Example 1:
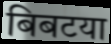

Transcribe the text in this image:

बिबटया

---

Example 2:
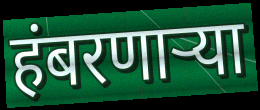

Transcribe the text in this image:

हंबरणाऱ्या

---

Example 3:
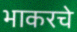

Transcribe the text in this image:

भाकरचे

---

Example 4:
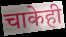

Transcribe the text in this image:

चाकेही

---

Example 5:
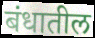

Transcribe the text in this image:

बंधातील